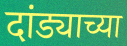
दांड्याच्या